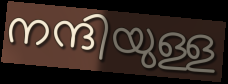
നന്ദിയുള്ള